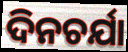
ଦିନଚର୍ଯା